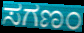
ಸಗಣಂ